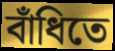
বাঁধিতে